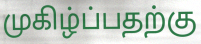
முகிழ்ப்பதற்கு